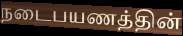
நடைபயணத்தின்